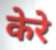
केरे